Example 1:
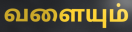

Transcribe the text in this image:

வளையும்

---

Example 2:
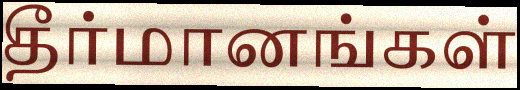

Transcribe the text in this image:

தீர்மானங்கள்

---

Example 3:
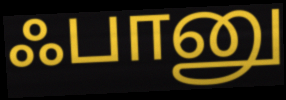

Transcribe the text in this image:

ஃபானு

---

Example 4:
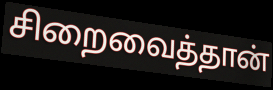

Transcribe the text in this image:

சிறைவைத்தான்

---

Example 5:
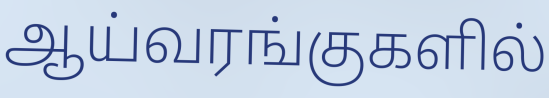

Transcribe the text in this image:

ஆய்வரங்குகளில்